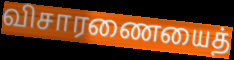
விசாரணையைத்